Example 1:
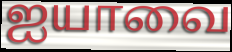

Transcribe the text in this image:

ஐயாவை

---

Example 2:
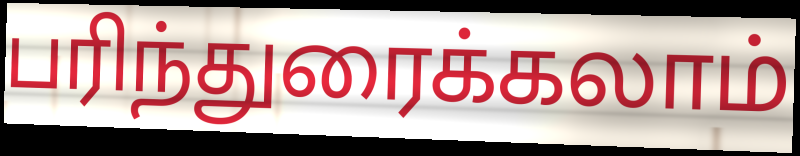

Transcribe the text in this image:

பரிந்துரைக்கலாம்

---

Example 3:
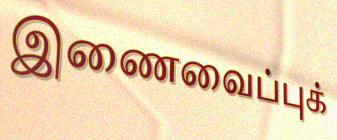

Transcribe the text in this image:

இணைவைப்புக்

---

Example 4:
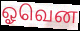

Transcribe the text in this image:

ஓவென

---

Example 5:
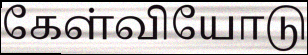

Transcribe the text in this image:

கேள்வியோடு